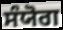
ਸੰਯੋਗ